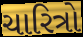
ચારિત્રો